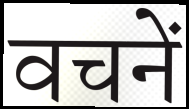
वचनें